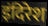
इंदिरेश